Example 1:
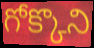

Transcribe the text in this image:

గోక్కొని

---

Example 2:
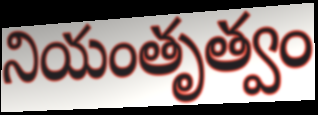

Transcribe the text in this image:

నియంతృత్వం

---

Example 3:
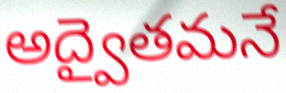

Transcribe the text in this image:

అద్వైతమనే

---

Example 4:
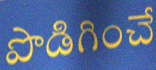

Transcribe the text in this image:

పొడిగించే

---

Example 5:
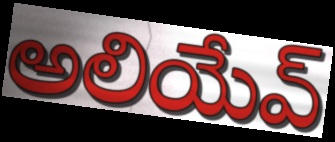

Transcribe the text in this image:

అలియేవ్